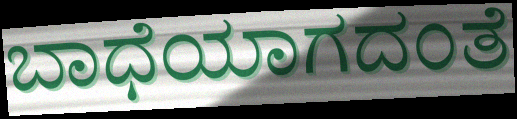
ಬಾಧೆಯಾಗದಂತೆ